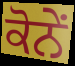
ਕੋਨੇਂ